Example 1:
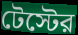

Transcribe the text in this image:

টেস্টের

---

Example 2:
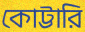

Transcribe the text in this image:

কোট্টারি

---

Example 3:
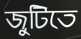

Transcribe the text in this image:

জুটিতে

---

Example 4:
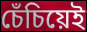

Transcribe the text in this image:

চেঁচিয়েই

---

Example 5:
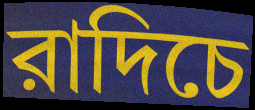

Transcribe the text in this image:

রাদিচে